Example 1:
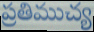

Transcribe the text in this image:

ప్రతిముచ్య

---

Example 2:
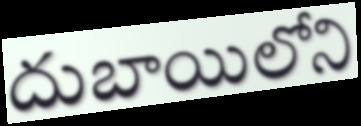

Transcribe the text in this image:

దుబాయిలోని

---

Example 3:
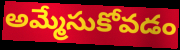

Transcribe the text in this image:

అమ్మేసుకోవడం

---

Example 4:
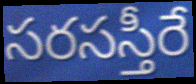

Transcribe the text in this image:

సరసస్తీరే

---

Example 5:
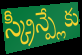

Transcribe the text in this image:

స్క్రీన్ప్లేకు